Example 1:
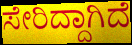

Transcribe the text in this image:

ಸೇರಿದ್ದಾಗಿದೆ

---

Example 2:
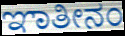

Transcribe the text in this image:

ಞಾತೀನಂ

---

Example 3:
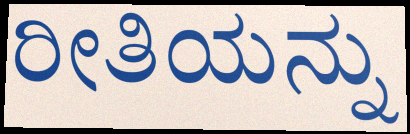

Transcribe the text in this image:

ರೀತಿಯನ್ನು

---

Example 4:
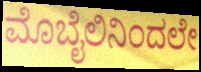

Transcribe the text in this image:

ಮೊಬೈಲಿನಿಂದಲೇ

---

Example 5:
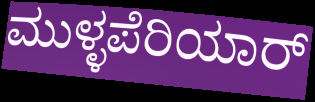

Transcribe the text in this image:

ಮುಳ್ಳಪೆರಿಯಾರ್